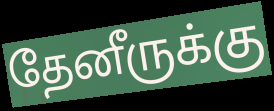
தேனீருக்கு